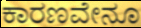
ಕಾರಣವೇನೂ